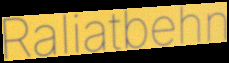
Raliatbehn